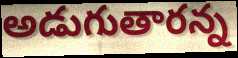
అడుగుతారన్న